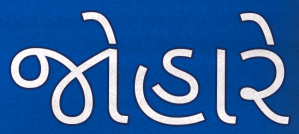
જોહારે